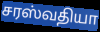
சரஸ்வதியா